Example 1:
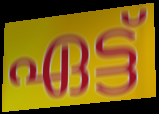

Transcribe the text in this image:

ഏട്ട്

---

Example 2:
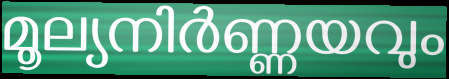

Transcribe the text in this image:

മൂല്യനിർണ്ണയവും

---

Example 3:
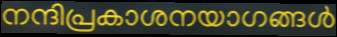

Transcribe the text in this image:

നന്ദിപ്രകാശനയാഗങ്ങൾ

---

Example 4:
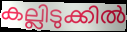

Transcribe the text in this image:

കല്ലിടുക്കിൽ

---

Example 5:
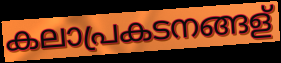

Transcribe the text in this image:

കലാപ്രകടനങ്ങള്